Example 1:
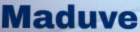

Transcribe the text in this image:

Maduve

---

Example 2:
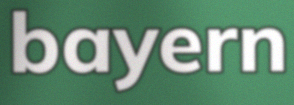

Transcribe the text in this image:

bayern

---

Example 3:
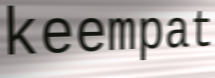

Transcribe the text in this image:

keempat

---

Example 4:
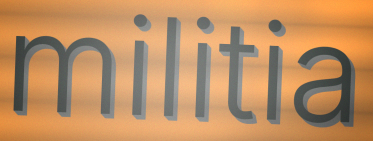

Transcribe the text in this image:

militia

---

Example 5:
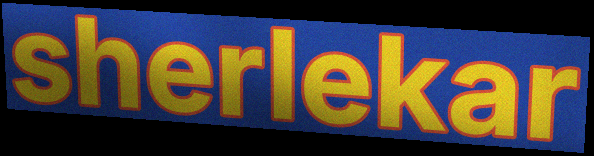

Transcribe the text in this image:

sherlekar